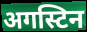
अगस्टिन